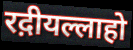
रद़ीयल्लाहो